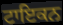
ਟਾਇਕਨ